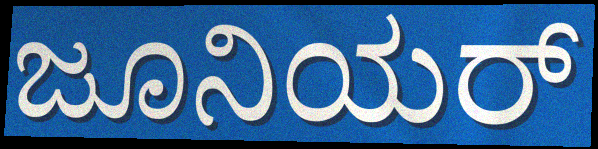
ಜೂನಿಯರ್